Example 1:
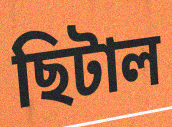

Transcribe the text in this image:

ছিটাল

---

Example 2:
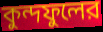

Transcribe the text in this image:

কুন্দফুলের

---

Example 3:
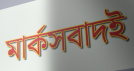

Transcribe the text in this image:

মার্কসবাদই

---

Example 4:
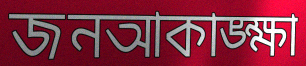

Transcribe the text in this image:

জনআকাঙ্ক্ষা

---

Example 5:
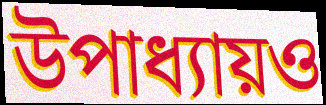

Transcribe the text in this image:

উপাধ্যায়ও